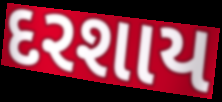
દરશાય